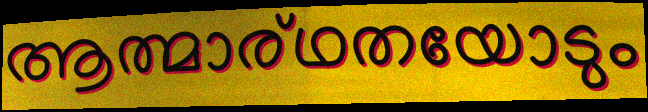
ആത്മാര്ഥതയോടും